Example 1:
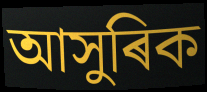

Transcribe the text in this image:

আসুৰিক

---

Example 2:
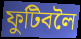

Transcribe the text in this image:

ফুটিবলৈ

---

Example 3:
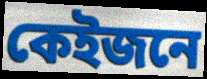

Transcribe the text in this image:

কেইজনে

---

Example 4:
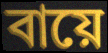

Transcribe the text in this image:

বায়ে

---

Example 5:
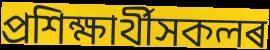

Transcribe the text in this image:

প্ৰশিক্ষাৰ্থীসকলৰ